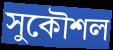
সুকৌশল